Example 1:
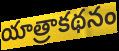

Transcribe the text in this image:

యాత్రాకథనం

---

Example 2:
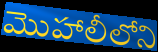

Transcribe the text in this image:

మొహాలీలోని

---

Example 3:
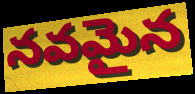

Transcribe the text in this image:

నవమైన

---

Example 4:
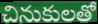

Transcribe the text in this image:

చినుకులతో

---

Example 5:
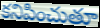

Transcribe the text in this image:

కనిపించుతూ